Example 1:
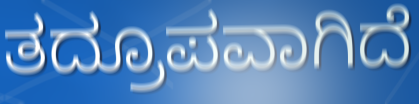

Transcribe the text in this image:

ತದ್ರೂಪವಾಗಿದೆ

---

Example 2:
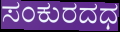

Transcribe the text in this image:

ಸಂಕುರದಧ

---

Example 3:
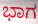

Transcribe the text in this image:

ಭಾಗ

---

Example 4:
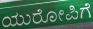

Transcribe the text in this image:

ಯುರೋಪಿಗೆ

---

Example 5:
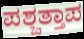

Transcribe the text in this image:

ಪಶ್ಚತ್ತಾಪ